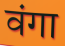
वंगा